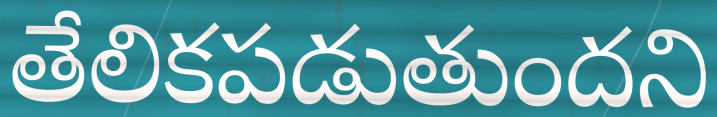
తేలికపడుతుందని